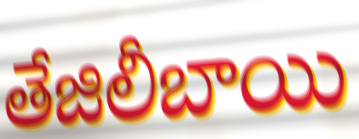
తేజిలీబాయి